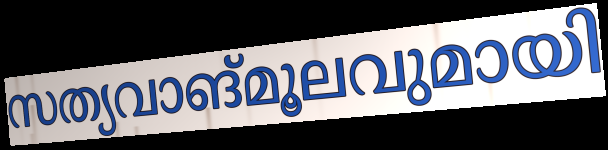
സത്യവാങ്മൂലവുമായി